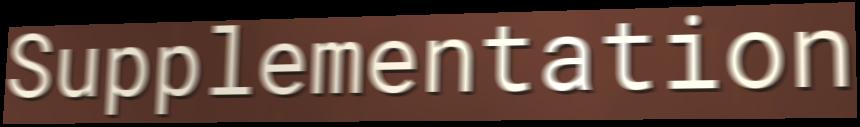
Supplementation